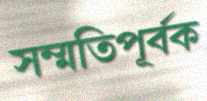
সম্মতিপূর্বক